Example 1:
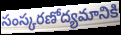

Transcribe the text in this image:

సంస్కరణోద్యమానికి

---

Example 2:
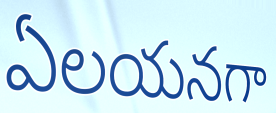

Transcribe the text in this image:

ఏలయనగా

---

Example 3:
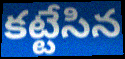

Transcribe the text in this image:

కట్టేసిన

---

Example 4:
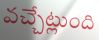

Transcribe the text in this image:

వచ్చేట్లుంది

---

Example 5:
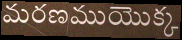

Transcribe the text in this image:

మరణముయొక్క